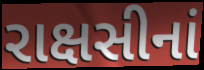
રાક્ષસીનાં